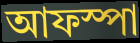
আফস্পা